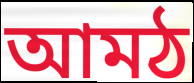
আমঠ